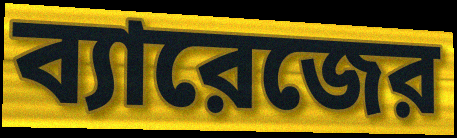
ব্যারেজের